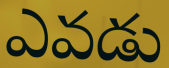
ఎవడు